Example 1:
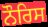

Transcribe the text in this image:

ਨੌਰਿਸ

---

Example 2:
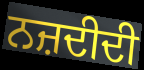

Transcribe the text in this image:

ਨਜ਼ਦੀਦੀ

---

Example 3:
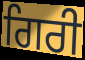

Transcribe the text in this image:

ਗਿਰੀ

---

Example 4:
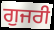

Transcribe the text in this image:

ਗੁਜਰੀ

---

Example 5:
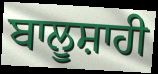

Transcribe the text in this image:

ਬਾਲੂਸ਼ਾਹੀ